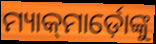
ମ୍ୟାକ୍‍ମାର୍ଡ଼ୋଙ୍କୁ